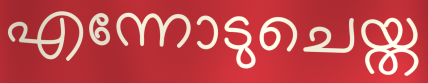
എന്നോടുചെയ്ത